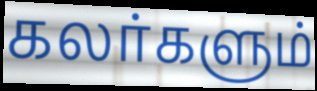
கலர்களும்